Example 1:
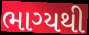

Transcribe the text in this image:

ભાગ્યથી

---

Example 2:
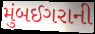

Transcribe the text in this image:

મુંબઈગરાની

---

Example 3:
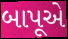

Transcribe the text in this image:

બાપૂએ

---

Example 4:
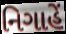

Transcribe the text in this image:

નિગાહેં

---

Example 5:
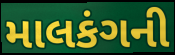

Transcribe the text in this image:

માલકંગની